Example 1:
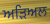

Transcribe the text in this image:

ਅੜਿਅਲ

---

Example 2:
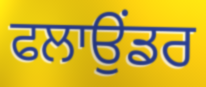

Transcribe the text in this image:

ਫਲਾਉਂਡਰ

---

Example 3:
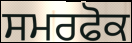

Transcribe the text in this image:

ਸਮਰਫੋਕ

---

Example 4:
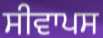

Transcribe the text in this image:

ਸੀਵਾਪਸ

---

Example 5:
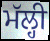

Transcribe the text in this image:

ਮੱਲ੍ਹੀ